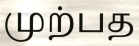
முற்பத